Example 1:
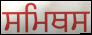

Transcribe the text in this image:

ਸਮਿਥਸ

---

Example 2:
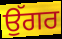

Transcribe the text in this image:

ਉੱਗਰ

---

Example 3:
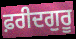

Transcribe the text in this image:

ਫ਼ਰੀਦਗੁਰੂ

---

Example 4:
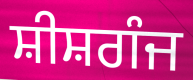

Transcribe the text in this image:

ਸ਼ੀਸ਼ਗੰਜ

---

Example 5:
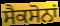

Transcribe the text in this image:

ਸੈਕਸੋਨਾਂ